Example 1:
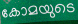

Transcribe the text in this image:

കോമയുടെ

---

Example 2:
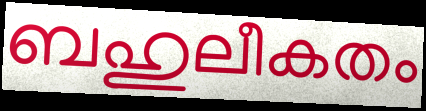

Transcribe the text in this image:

ബഹുലീകതം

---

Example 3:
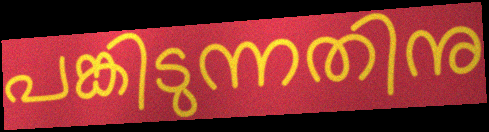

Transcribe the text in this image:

പങ്കിടുന്നതിനു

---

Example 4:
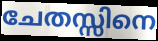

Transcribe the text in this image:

ചേതസ്സിനെ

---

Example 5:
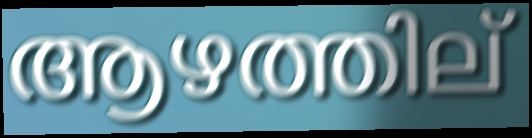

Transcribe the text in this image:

ആഴത്തില്